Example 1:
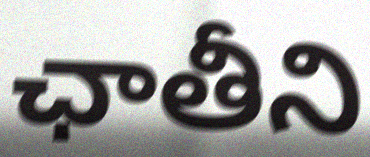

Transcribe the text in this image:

ఛాతీని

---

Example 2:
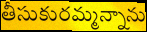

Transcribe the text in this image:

తీసుకురమ్మన్నాను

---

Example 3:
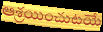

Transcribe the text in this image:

ఆశ్రయించుటయే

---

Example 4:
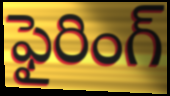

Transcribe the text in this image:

ఫైరింగ్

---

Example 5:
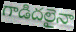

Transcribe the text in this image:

గాడిదలైనా